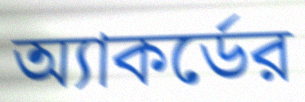
অ্যাকর্ডের